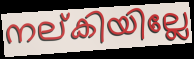
നല്കിയില്ലേ